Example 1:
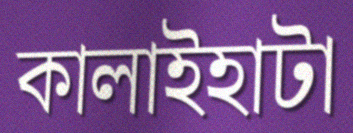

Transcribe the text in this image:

কালাইহাটা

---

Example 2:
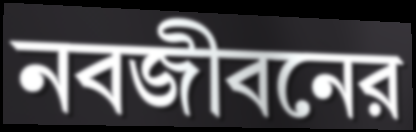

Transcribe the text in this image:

নবজীবনের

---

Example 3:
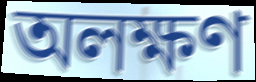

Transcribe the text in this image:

অলক্ষণ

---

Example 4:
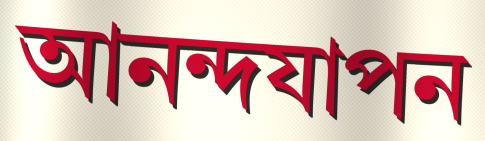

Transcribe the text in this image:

আনন্দযাপন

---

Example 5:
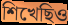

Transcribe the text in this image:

শিখেছিও